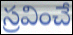
స్రవించే